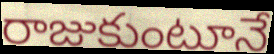
రాజుకుంటూనే